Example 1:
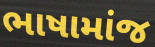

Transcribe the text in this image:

ભાષામાંજ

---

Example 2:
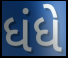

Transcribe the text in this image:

ધંધે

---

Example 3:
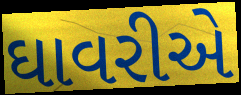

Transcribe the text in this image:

ઘાવરીએ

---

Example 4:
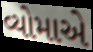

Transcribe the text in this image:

વ્યોમાએ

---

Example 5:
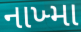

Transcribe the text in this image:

નાખ્મા